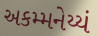
અકમ્મનેય્યં